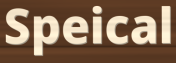
Speical